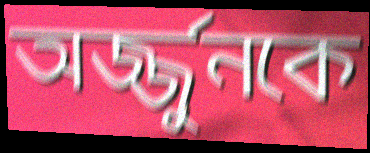
অর্জ্জুনকে